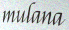
mulana